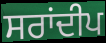
ਸਰਾਂਦੀਪ